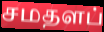
சமதளப்